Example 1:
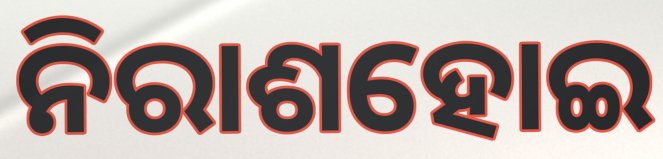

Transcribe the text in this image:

ନିରାଶହୋଇ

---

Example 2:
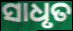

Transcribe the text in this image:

ସାଧୃତ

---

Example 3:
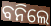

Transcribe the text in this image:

ବନିଲେ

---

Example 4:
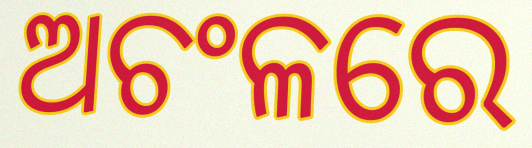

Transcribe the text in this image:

ଅଚଂଳରେ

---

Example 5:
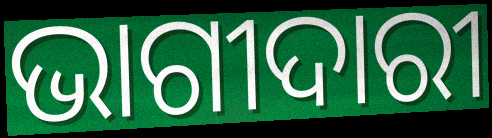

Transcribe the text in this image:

ଭାଗୀଦାରୀ